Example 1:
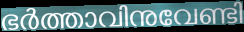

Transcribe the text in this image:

ഭർത്താവിനുവേണ്ടി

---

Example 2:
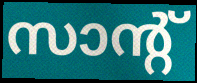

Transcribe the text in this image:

സാന്റ്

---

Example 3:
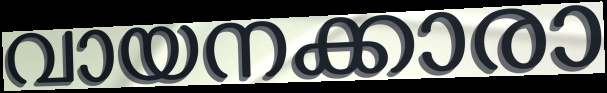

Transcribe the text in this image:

വായനക്കാരാ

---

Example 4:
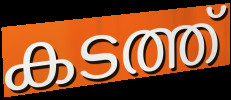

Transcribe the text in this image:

കടത്ത്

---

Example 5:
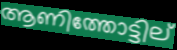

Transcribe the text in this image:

ആണിത്തോട്ടില്